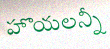
హొయలన్నీ